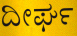
ದೀರ್ಘ